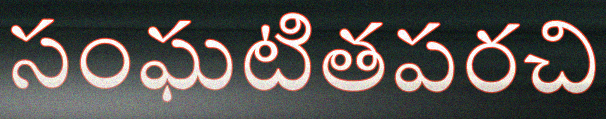
సంఘటితపరచి